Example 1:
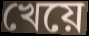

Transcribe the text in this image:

খেয়ে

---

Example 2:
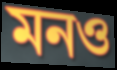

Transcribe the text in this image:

মনও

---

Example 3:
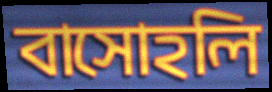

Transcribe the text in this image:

বাসোহলি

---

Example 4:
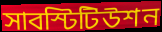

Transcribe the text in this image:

সাবস্টিটিউশন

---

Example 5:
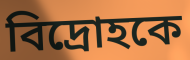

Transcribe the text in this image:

বিদ্রোহকে